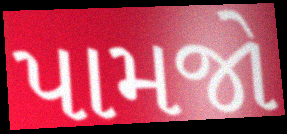
પામજો